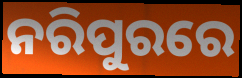
ନରିପୁରରେ